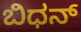
ಬಿಧನ್